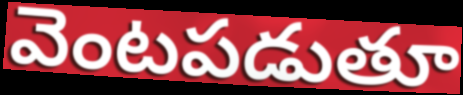
వెంటపడుతూ